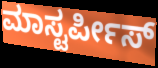
ಮಾಸ್ಟರ್ಪೀಸ್